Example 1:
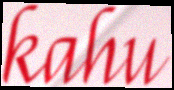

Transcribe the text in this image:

kahu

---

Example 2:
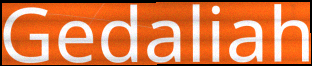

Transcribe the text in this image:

Gedaliah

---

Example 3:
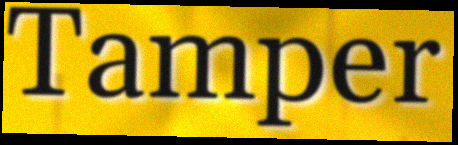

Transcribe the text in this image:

Tamper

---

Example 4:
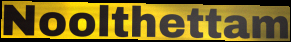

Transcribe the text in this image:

Noolthettam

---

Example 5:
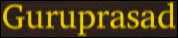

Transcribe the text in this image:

Guruprasad